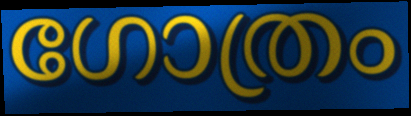
ഗോത്രം